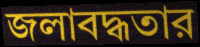
জলাবদ্ধতার